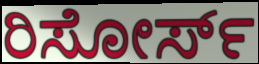
ರಿಸೋರ್ಸ್